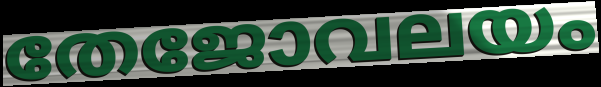
തേജോവലയം